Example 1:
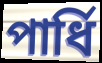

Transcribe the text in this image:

পাৰ্ধি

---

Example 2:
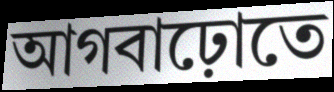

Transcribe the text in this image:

আগবাঢ়োতে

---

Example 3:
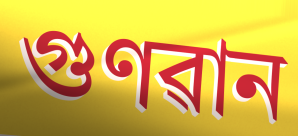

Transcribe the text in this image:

গুণৱান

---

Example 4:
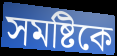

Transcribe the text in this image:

সমষ্টিকে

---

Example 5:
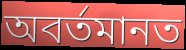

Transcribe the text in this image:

অবৰ্তমানত